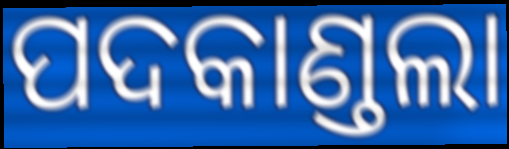
ପଦକାଣ୍ଡଲା